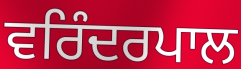
ਵਰਿੰਦਰਪਾਲ